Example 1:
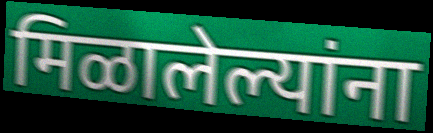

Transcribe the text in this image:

मिळालेल्यांना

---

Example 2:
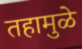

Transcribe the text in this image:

तहामुळे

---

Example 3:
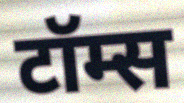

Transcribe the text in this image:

टॉम्स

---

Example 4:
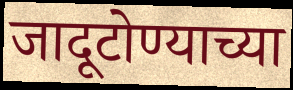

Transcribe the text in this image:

जादूटोण्याच्या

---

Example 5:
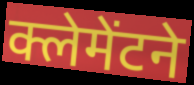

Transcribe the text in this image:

क्लेमेंटने